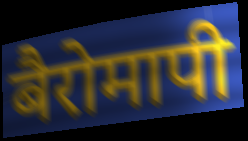
बैरोमापी